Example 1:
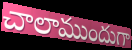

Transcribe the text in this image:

చాలాముందుగా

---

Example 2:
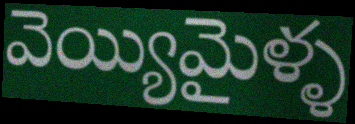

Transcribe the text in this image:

వెయ్యిమైళ్ళ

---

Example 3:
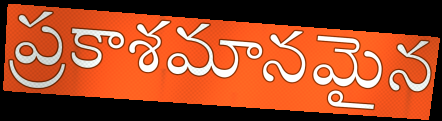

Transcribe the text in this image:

ప్రకాశమానమైన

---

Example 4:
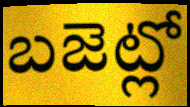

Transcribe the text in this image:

బజెట్లో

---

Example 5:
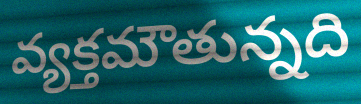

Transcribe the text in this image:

వ్యక్తమౌతున్నది